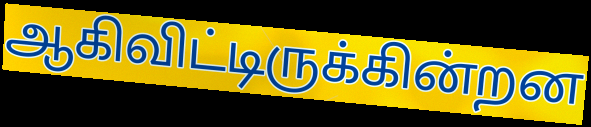
ஆகிவிட்டிருக்கின்றன